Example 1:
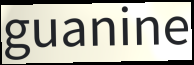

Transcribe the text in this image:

guanine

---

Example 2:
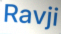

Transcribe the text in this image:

Ravji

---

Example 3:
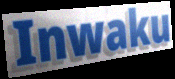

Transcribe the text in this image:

Inwaku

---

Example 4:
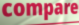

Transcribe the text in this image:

compare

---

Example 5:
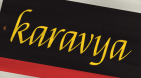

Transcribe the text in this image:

karavya